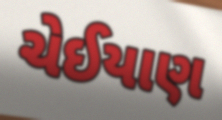
ચેઈયાણ